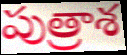
పుత్రాశ